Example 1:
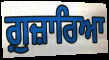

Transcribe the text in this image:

ਗ਼ੁਜ਼ਾਰਿਆ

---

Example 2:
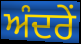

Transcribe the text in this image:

ਅੰਦਰੇਂ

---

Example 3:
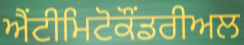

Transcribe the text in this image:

ਐਂਟੀਮਿਟੋਕੌਂਡਰੀਅਲ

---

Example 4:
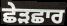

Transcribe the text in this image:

ਛੇੜਛਾਰ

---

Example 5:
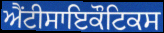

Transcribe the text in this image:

ਐਂਟੀਸਾਇਕੌਟਿਕਸ